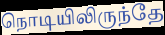
நொடியிலிருந்தே